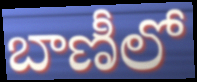
బాణీలో